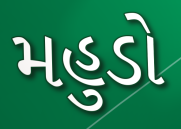
મહુડો